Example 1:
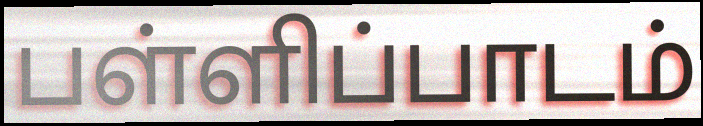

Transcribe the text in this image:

பள்ளிப்பாடம்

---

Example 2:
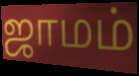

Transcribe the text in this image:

ஜாமம்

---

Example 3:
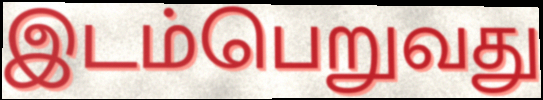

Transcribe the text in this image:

இடம்பெறுவது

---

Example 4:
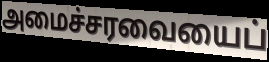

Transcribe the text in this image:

அமைச்சரவையைப்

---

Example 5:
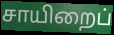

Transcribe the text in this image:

சாயிறைப்